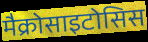
मैक्रोसाइटोसिस